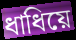
ধাধিয়ে